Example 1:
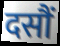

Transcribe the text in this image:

दसौं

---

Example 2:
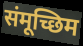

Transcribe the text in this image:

संमूच्छिम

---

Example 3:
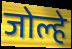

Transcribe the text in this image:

जोल्हे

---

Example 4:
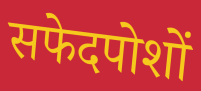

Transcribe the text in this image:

सफेदपोशों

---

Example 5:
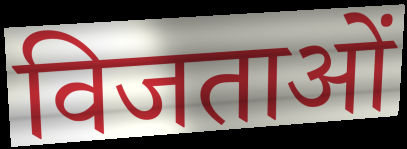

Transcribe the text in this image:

विजताओं